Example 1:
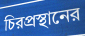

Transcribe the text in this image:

চিরপ্রস্থানের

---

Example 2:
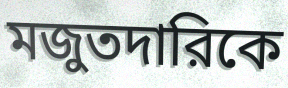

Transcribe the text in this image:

মজুতদারিকে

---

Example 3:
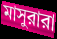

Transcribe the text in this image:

মাসুরারা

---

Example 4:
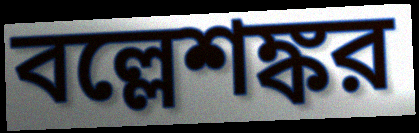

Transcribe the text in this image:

বল্লেশঙ্কর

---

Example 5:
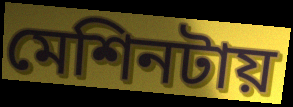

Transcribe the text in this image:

মেশিনটায়